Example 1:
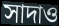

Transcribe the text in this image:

সাদাও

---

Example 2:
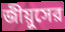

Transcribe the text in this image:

জীয়ুসের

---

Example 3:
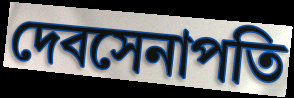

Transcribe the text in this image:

দেবসেনাপতি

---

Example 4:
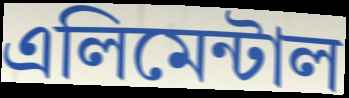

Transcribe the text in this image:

এলিমেন্টাল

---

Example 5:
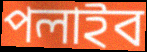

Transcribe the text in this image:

পলাইব